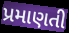
પ્રમાણતી